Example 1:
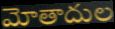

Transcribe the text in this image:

మోతాదుల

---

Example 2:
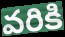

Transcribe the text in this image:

వరికి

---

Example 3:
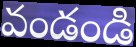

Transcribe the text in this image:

వండండి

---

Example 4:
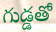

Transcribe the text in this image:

గుడ్డతో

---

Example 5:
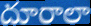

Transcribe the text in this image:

దూరాలా